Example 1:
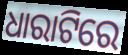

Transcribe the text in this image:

ଧାରାଟିରେ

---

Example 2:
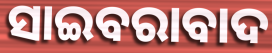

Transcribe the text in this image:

ସାଇବରାବାଦ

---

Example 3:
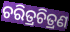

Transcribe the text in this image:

ଚରିତ୍ରଚିତ୍ରଣ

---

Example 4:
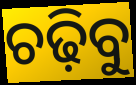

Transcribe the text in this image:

ଚଢ଼ିବୁ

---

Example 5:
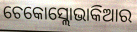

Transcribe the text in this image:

ଚେକୋସ୍ଲୋଭାକିଆର